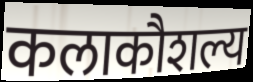
कलाकौशल्य